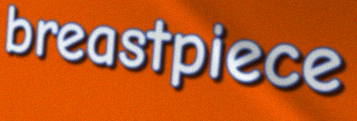
breastpiece